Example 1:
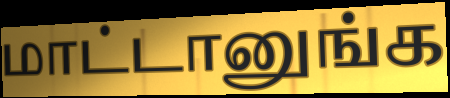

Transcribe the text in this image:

மாட்டானுங்க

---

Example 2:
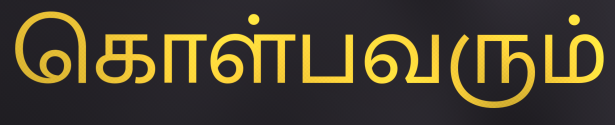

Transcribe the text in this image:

கொள்பவரும்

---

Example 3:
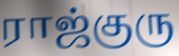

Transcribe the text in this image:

ராஜ்குரு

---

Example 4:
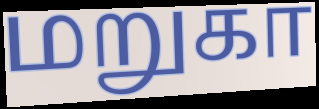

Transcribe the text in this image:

மறுகா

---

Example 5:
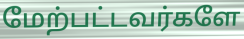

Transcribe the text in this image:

மேற்பட்டவர்களே